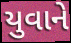
યુવાને